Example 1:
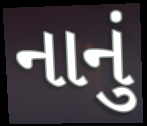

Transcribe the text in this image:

નાનું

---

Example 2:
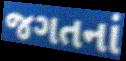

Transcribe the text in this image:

જગતનાં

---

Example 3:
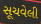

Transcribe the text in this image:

સૂચવેલી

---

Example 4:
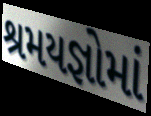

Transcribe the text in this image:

શ્રમયજ્ઞોમાં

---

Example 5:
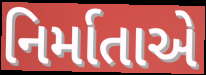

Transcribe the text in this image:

નિર્માતાએ